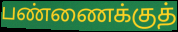
பண்ணைக்குத்